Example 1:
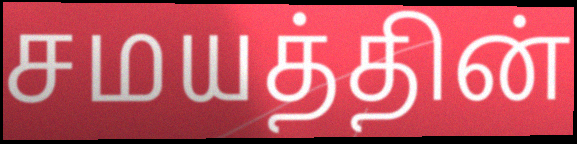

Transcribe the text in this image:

சமயத்தின்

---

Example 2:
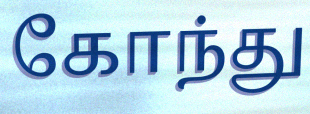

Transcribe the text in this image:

கோந்து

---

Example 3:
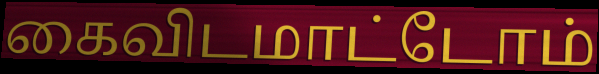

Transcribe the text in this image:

கைவிடமாட்டோம்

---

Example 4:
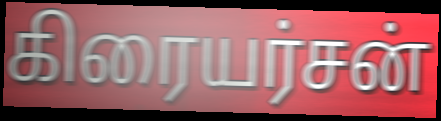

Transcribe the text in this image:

கிரையர்சன்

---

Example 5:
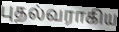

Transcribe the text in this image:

புதல்வராகிய